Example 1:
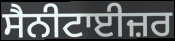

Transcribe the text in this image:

ਸੈਨੀਟਾਈਜ਼ਰ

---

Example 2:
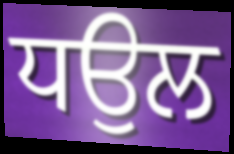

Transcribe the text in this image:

ਧਉਲ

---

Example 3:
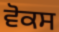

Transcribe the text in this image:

ਵੋਕਸ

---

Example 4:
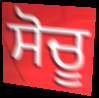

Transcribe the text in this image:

ਸੋਚੂ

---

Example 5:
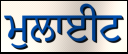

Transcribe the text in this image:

ਮੁਲਾਈਟ